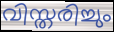
വിസ്തരിച്ചും